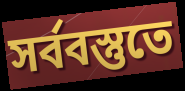
সর্ববস্তুতে